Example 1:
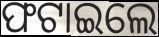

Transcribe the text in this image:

ଫଟାଇଲେ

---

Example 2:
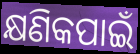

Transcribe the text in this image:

କ୍ଷଣିକପାଇଁ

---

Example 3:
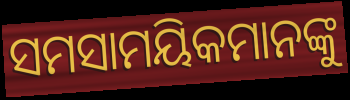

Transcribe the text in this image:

ସମସାମୟିକମାନଙ୍କୁ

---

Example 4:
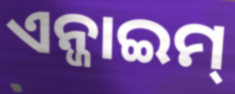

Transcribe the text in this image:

ଏନ୍ଜାଇମ୍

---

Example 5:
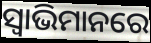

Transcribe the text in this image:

ସ୍ୱାଭିମାନରେ